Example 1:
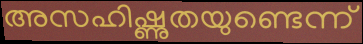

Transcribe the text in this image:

അസഹിഷ്ണുതയുണ്ടെന്ന്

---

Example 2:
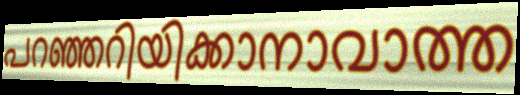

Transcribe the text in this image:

പറഞ്ഞറിയിക്കാനാവാത്ത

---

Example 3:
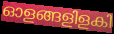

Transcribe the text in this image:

ഓളങ്ങളിളകി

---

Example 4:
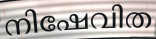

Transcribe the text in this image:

നിഷേവിത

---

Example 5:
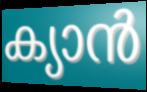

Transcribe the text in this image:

ക്യാൻ